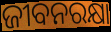
ଜୀବନରକ୍ଷା